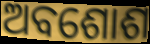
ଅବଶୋଶ